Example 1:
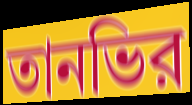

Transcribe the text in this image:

তানভির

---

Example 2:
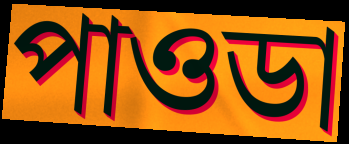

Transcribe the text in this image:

পাওডা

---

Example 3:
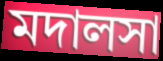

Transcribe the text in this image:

মদালসা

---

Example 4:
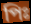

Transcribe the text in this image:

পিঃ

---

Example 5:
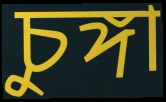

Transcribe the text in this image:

চুঙ্গা